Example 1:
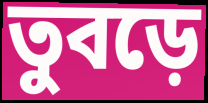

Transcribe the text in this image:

তুবড়ে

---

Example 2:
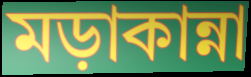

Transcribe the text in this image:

মড়াকান্না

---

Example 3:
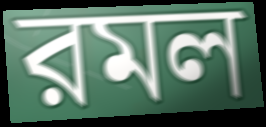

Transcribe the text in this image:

রমল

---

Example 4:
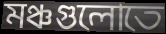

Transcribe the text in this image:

মঞ্চগুলোতে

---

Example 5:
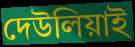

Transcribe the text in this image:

দেউলিয়াই